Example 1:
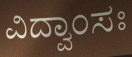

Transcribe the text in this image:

ವಿದ್ವಾಂಸಃ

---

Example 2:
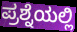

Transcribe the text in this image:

ಪ್ರಶ್ನೆಯಲ್ಲಿ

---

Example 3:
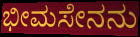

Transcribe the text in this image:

ಭೀಮಸೇನನು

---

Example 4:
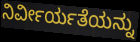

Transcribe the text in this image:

ನಿರ್ವೀರ್ಯತೆಯನ್ನು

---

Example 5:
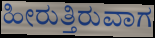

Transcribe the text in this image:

ಹೀರುತ್ತಿರುವಾಗ